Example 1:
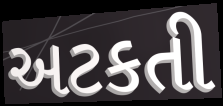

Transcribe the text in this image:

અટકતી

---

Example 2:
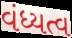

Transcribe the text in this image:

વંધ્યત્વ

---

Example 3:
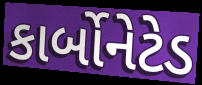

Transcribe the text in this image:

કાર્બોનેટેડ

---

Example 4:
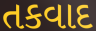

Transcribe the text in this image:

તકવાદ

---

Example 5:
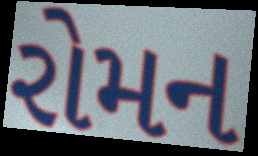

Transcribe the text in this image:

રોમન